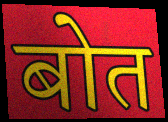
बोत